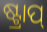
ଷ୍ଟ୍ରାପ୍